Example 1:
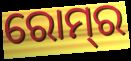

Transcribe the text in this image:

ରୋମ୍‍ର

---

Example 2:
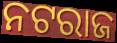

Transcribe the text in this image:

ନଟରାଜ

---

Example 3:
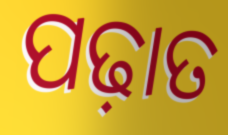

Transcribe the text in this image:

ପଢ଼ାତ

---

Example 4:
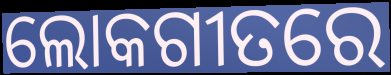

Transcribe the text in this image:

ଲୋକଗୀତରେ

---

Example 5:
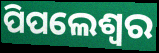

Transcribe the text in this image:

ପିପଲେଶ୍ୱର